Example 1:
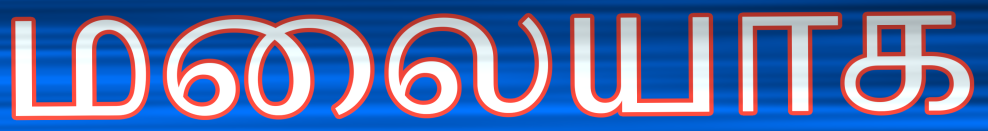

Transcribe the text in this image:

மலையாக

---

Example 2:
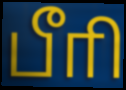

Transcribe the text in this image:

பீரி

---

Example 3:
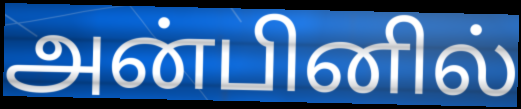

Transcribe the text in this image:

அன்பினில்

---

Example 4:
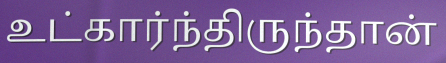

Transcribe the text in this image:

உட்கார்ந்திருந்தான்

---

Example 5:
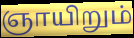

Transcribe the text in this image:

ஞாயிறும்